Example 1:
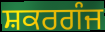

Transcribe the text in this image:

ਸ਼ਕਰਗੰਜ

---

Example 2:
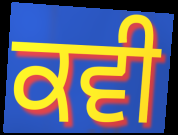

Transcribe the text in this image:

ਕਵੀ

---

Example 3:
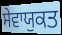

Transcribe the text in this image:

ਸੇਵਾਯੁਕਤ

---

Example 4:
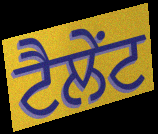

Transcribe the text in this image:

ਟੈਲੇੰਟ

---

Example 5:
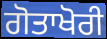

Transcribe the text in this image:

ਗੋਤਾਖੋਰੀ